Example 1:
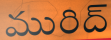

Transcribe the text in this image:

మురిద్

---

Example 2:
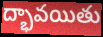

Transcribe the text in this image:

ద్భావయితు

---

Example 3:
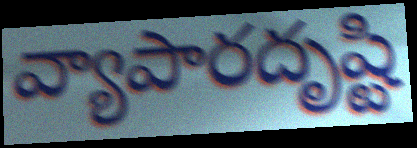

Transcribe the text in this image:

వ్యాపారదృష్టి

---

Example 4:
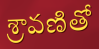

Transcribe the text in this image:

శ్రావణితో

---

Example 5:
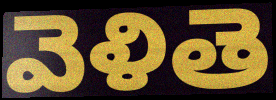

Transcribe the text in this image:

వెళితె